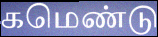
கமெண்டு